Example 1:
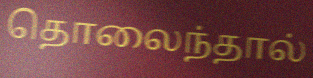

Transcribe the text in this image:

தொலைந்தால்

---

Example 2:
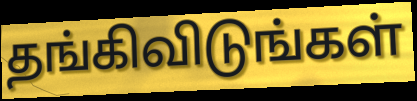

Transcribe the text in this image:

தங்கிவிடுங்கள்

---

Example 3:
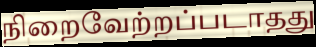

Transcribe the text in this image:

நிறைவேற்றப்படாதது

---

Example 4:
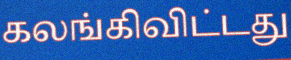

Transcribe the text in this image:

கலங்கிவிட்டது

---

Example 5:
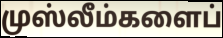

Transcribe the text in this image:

முஸ்லீம்களைப்